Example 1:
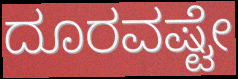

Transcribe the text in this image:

ದೂರವಷ್ಟೇ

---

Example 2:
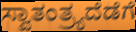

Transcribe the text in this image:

ಸ್ವಾತಂತ್ರ್ಯದೆಡೆಗೆ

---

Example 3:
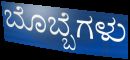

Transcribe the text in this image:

ಬೊಬ್ಬೆಗಳು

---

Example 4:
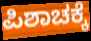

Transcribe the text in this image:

ಪಿಶಾಚಕ್ಕೆ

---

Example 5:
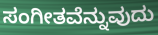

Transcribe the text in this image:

ಸಂಗೀತವೆನ್ನುವುದು